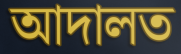
আদালত